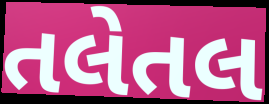
તલેતલ